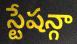
స్టేషన్గా